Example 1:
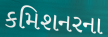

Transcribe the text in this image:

કમિશનરના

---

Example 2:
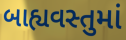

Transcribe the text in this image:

બાહ્યવસ્તુમાં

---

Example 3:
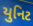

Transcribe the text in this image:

યુનિટ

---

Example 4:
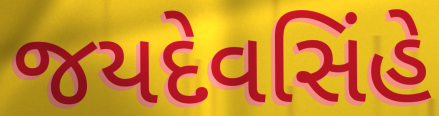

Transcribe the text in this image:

જયદેવસિંહે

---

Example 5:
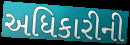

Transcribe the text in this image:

અધિકારીની